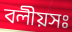
বলীয়সঃ